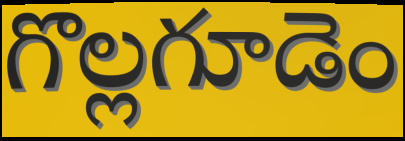
గొల్లగూడెం